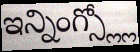
ఇన్నింగ్స్ల్లో